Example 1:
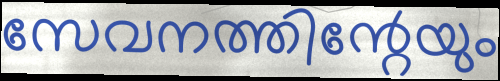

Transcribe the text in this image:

സേവനത്തിന്റേയും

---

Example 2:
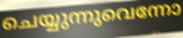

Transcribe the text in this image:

ചെയ്യുന്നുവെന്നോ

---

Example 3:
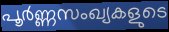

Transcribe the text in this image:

പൂർണ്ണസംഖ്യകളുടെ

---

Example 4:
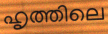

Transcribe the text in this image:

ഹൃത്തിലെ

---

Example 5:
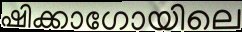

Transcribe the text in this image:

ഷിക്കാഗോയിലെ